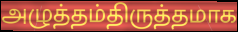
அழுத்தம்திருத்தமாக